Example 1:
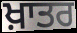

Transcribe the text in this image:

ਖ਼ਾਤਰ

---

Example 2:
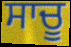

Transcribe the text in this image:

ਸਾਚੂ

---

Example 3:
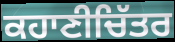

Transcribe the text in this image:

ਕਹਾਣੀਚਿੱਤਰ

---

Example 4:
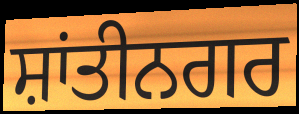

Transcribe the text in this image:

ਸ਼ਾਂਤੀਨਗਰ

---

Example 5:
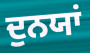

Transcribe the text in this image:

ਦੁਨਯਾਂ